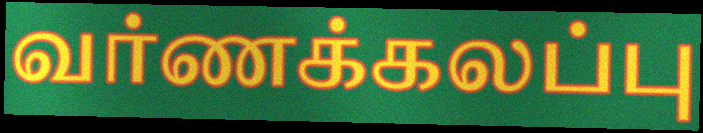
வர்ணக்கலப்பு